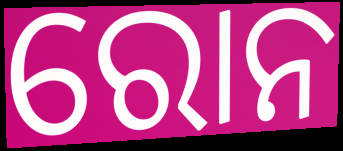
ରୋନ